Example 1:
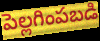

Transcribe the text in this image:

పెల్లగింపబడి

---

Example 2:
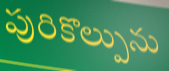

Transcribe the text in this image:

పురికొల్పును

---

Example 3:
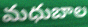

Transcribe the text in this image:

మధుబాల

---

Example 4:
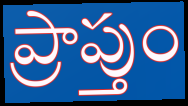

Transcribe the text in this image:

ప్రాప్తుం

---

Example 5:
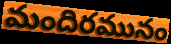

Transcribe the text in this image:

మందిరమునం